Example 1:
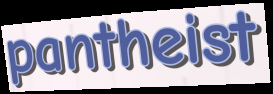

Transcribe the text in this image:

pantheist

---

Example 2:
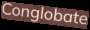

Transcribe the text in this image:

Conglobate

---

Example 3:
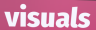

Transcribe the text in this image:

visuals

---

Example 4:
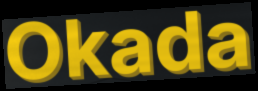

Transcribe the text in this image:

Okada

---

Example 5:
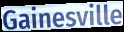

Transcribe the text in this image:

Gainesville